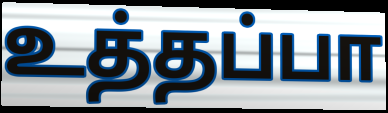
உத்தப்பா